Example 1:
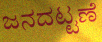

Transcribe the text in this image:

ಜನದಟ್ಟಣೆ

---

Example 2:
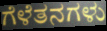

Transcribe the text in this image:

ಗೆಳೆತನಗಳು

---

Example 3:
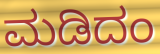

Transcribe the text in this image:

ಮಡಿದಂ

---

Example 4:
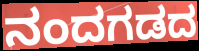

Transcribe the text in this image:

ನಂದಗಡದ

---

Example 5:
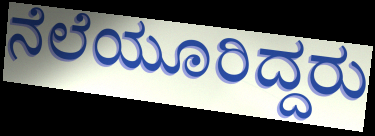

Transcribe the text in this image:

ನೆಲೆಯೂರಿದ್ದರು